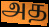
அத